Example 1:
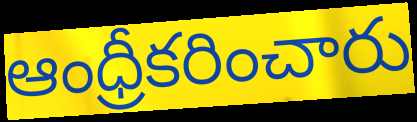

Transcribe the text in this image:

ఆంధ్రీకరించారు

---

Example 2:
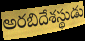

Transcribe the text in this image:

అరబిదేశస్థుడు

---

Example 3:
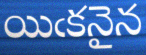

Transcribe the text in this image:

యిఁకనైన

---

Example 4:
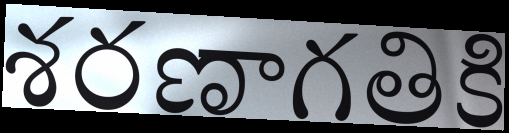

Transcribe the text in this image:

శరణాగతికి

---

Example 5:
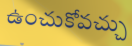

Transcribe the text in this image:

ఉంచుకోవచ్చు